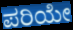
ಪರಿಯೇ